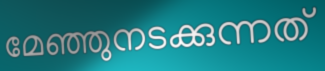
മേഞ്ഞുനടക്കുന്നത്